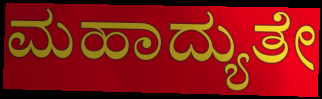
ಮಹಾದ್ಯುತೇ